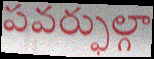
పవర్ఫుల్గా